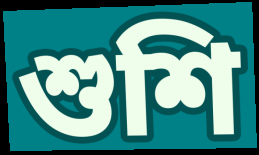
শুশি